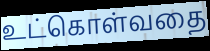
உட்கொள்வதை